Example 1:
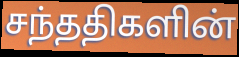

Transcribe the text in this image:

சந்ததிகளின்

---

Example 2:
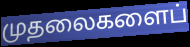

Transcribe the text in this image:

முதலைகளைப்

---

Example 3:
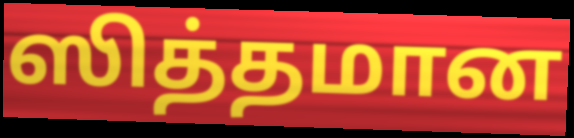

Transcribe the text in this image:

ஸித்தமான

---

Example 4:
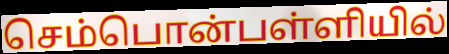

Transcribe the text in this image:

செம்பொன்பள்ளியில்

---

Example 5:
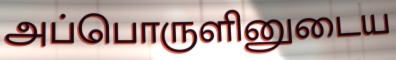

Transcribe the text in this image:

அப்பொருளினுடைய